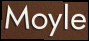
Moyle